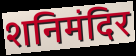
शनिमंदिर